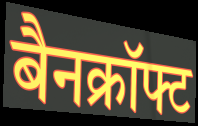
बैनक्रॉफ्ट